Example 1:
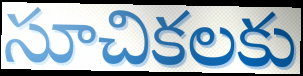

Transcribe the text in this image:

సూచికలకు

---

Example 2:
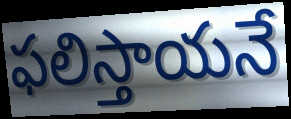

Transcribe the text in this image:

ఫలిస్తాయనే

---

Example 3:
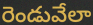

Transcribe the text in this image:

రెండువేలా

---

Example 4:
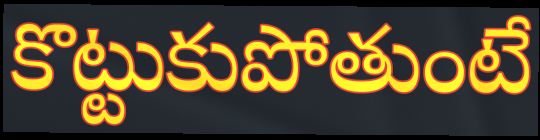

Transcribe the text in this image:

కొట్టుకుపోతుంటే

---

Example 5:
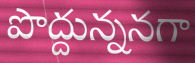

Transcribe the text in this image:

పొద్దున్ననగా